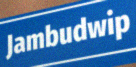
Jambudwip